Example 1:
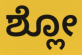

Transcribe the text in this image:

ಶ್ಲೋ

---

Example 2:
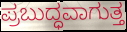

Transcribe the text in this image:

ಪ್ರಬುದ್ಧವಾಗುತ್ತ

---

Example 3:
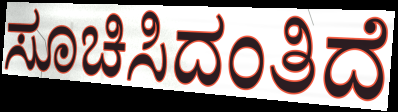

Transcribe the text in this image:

ಸೂಚಿಸಿದಂತಿದೆ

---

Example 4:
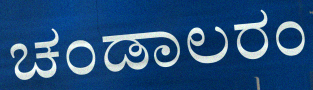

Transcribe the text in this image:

ಚಂಡಾಲರಂ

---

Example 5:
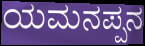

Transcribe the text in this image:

ಯಮನಪ್ಪನ